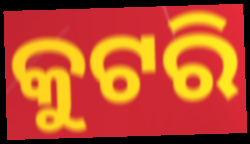
କୁଟରି